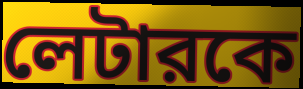
লেটারকে